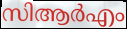
സിആർഎം